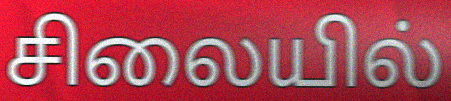
சிலையில்